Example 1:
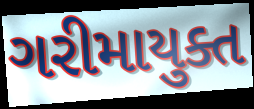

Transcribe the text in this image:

ગરીમાયુક્ત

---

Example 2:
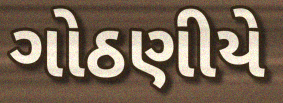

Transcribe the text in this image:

ગોઠણીયે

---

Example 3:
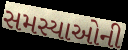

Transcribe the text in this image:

સમસ્યાઓની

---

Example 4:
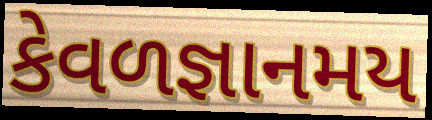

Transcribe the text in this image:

કેવળજ્ઞાનમય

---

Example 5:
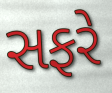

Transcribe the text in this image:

સફરે